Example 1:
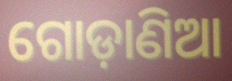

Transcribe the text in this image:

ଗୋଡ଼ାଣିଆ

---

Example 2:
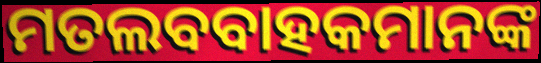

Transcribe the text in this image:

ମତଲବବାହକମାନଙ୍କ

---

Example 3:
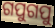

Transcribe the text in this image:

ଗପୁଗପୁ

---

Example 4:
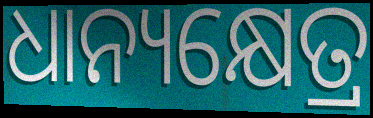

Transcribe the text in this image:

ଧାନ୍ୟକ୍ଷେତ୍ର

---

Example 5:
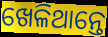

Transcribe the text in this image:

ଖେଳିଥାନ୍ତେ